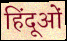
हिंदूओं